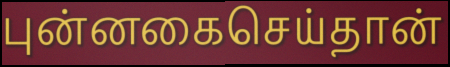
புன்னகைசெய்தான்